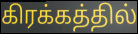
கிரக்கத்தில்